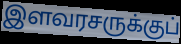
இளவரசருக்குப்